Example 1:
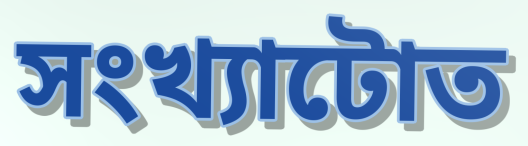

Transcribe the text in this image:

সংখ্যাটোত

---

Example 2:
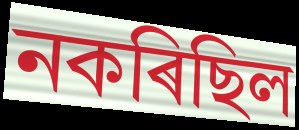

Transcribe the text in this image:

নকৰিছিল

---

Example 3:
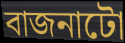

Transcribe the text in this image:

বাজনাটো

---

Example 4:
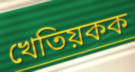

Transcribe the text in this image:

খেতিয়কক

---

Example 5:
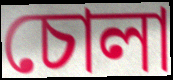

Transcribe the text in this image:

চোলা